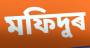
মফিদুৰ